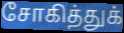
சோகித்துக்